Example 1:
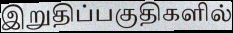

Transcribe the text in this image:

இறுதிப்பகுதிகளில்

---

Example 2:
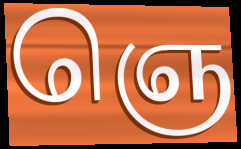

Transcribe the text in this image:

ஞெ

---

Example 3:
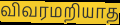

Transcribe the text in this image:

விவரமறியாத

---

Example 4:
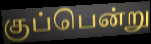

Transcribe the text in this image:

குப்பென்று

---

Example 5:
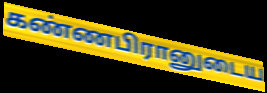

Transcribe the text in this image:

கண்ணபிரானுடைய